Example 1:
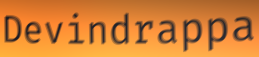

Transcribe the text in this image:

Devindrappa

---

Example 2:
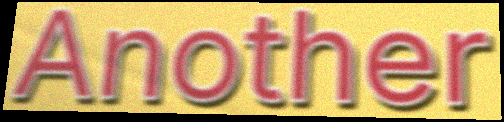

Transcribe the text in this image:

Another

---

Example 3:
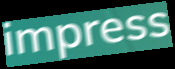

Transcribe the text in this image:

impress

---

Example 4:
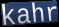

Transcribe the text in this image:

kahr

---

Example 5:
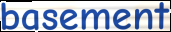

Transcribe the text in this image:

basement